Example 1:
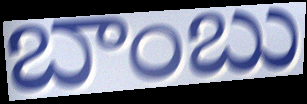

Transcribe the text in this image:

బాంబు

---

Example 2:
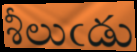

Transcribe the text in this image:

శీలుఁడు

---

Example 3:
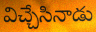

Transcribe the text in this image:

విచ్చేసినాడు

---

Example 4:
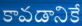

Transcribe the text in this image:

కావడానికే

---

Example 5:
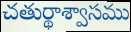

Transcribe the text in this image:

చతుర్థాశ్వాసము